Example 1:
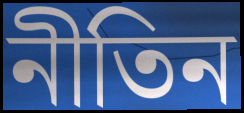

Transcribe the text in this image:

নীতিন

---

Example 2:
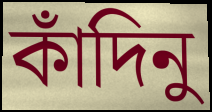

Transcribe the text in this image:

কাঁদিনু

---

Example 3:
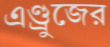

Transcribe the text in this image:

এণ্ড্রুজের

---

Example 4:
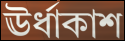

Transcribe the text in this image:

ঊর্ধাকাশ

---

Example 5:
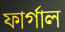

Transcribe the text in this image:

ফার্গাল